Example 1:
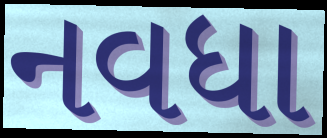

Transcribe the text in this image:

નવધા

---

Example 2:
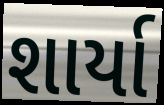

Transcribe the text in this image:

શાર્યા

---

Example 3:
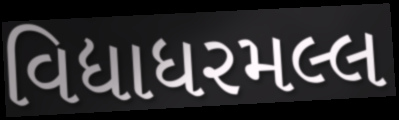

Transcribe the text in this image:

વિદ્યાધરમલ્લ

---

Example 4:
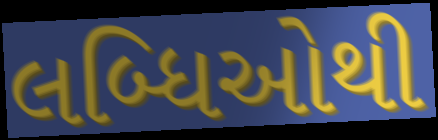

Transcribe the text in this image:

લબ્ધિઓથી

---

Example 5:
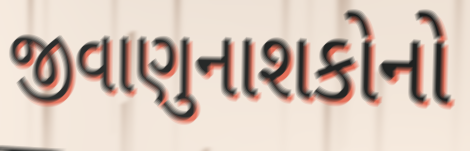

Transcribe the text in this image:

જીવાણુનાશકોનો